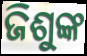
ଜିଶୁଙ୍କ